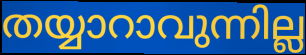
തയ്യാറാവുന്നില്ല